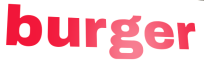
burger